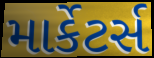
માર્કેટર્સ